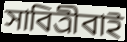
সাবিত্ৰীবাই